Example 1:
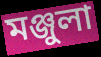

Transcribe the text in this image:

মঞ্জুলা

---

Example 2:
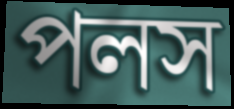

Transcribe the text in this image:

পলস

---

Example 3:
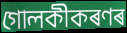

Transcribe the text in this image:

গোলকীকৰণৰ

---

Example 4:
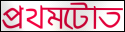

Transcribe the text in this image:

প্ৰথমটোত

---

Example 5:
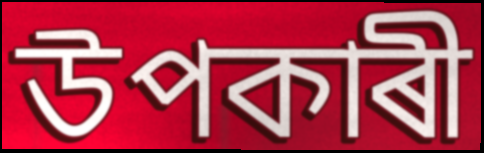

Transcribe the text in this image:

উপকাৰী